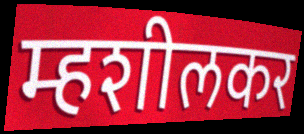
म्हशीलकर